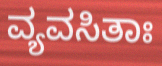
ವ್ಯವಸಿತಾಃ